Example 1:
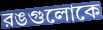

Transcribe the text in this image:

রঙগুলোকে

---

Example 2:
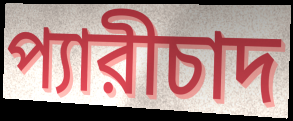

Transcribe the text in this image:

প্যারীচাদ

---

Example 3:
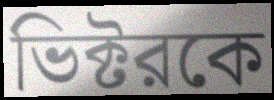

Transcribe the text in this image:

ভিক্টরকে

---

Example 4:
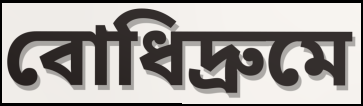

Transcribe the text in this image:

বোধিদ্রুমে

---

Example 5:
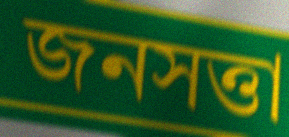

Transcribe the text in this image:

জনসত্তা